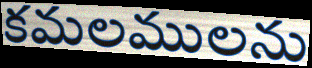
కమలములను